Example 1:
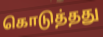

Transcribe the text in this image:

கொடுத்தது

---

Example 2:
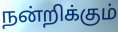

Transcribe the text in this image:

நன்றிக்கும்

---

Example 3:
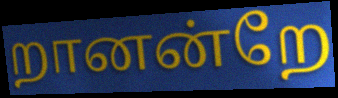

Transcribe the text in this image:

றானன்றே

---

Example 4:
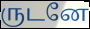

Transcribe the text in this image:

ருடனே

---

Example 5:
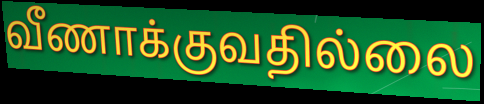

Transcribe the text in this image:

வீணாக்குவதில்லை